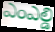
ఎంఎల్డి